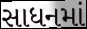
સાધનમાં